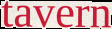
tavern